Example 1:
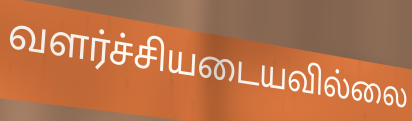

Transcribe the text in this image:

வளர்ச்சியடையவில்லை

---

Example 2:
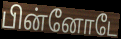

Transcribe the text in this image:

பின்னோடே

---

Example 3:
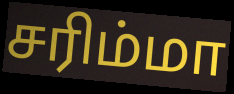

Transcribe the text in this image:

சரிம்மா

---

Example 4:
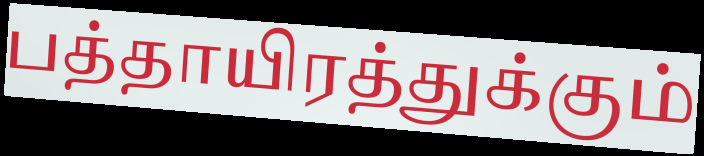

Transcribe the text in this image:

பத்தாயிரத்துக்கும்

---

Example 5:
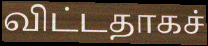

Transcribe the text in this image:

விட்டதாகச்